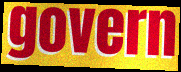
govern